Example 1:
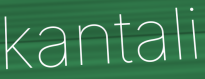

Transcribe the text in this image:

kantali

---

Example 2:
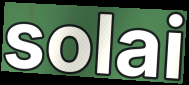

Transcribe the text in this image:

solai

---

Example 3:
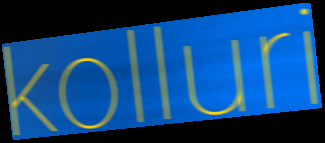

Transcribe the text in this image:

kolluri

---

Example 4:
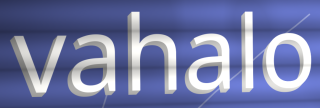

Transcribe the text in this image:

vahalo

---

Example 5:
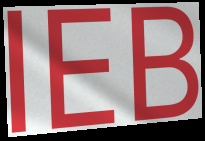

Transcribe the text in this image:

IEB